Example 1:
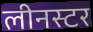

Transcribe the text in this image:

लीनस्टर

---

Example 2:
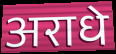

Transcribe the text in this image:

अराधे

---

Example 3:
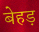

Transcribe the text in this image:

बेहड़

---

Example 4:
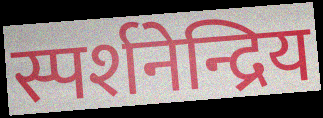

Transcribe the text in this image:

स्पर्शनेन्द्रिय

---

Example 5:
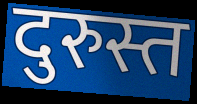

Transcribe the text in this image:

दुरुस्त